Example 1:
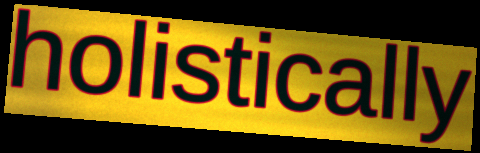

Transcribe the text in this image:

holistically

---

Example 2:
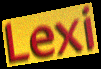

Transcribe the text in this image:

Lexi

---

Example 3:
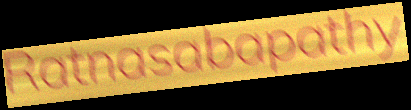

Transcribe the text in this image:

Ratnasabapathy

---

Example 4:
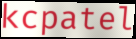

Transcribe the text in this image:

kcpatel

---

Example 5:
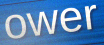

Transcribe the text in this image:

ower